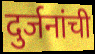
दुर्जनांची